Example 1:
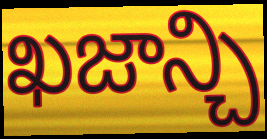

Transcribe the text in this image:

ఖజాన్చి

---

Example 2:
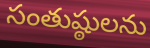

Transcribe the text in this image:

సంతుష్ఠులను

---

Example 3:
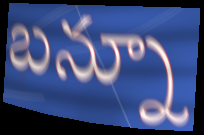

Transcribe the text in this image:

బన్నూ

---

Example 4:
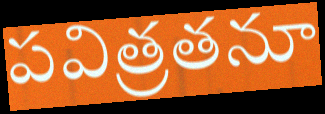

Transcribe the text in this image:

పవిత్రతనూ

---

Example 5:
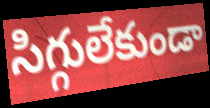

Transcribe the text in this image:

సిగ్గులేకుండా